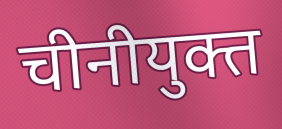
चीनीयुक्त